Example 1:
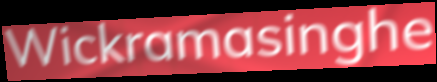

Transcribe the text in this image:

Wickramasinghe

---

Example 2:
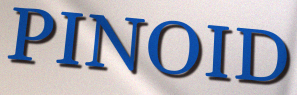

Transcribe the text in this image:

PINOID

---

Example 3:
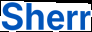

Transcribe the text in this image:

Sherr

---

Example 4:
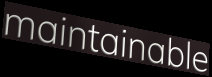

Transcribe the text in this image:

maintainable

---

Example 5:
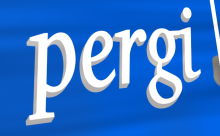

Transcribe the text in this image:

pergi